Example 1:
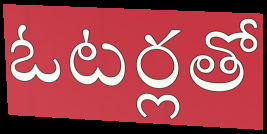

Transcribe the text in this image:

ఓటర్లతో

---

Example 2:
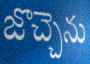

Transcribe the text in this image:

జొచ్చెను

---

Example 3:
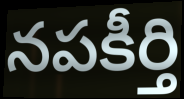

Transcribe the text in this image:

నపకీర్తి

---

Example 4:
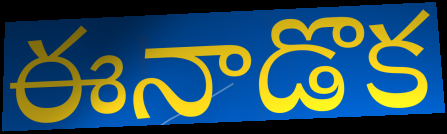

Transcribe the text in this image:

ఈనాడొక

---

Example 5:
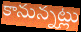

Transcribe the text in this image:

కానున్నట్లు